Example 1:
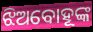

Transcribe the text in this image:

ଝିଅବୋହୂଙ୍କ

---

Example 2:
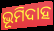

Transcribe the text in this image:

ଭୂମିଦାହ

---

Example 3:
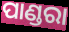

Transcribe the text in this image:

ପାଣ୍ଡରା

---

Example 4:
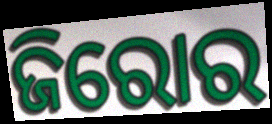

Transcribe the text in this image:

ଜିରୋର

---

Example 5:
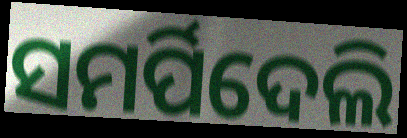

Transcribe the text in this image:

ସମର୍ପିଦେଲି